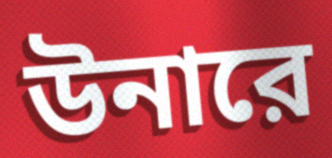
উনারে